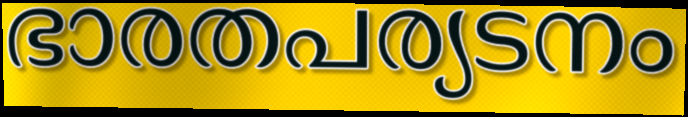
ഭാരതപര്യടനം